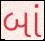
બાં